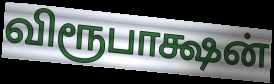
விரூபாக்ஷன்